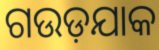
ଗଉଡ଼ଯାକ